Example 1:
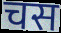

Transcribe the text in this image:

चस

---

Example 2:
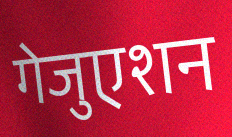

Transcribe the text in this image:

गेजुएशन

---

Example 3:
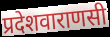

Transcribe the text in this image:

प्रदेशवाराणसी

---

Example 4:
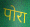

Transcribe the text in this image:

पोरा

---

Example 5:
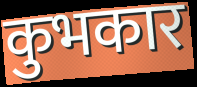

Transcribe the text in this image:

कुभकार